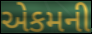
એકમની